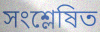
সংশ্লেষিত